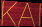
KAI